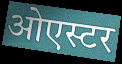
ओएस्टर